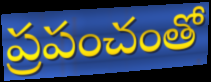
ప్రపంచంతో